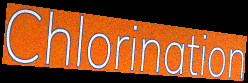
Chlorination